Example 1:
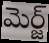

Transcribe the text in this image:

మెర్జ్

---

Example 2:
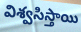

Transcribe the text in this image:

విశ్వసిస్తాయి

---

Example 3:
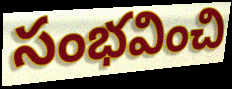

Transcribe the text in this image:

సంభవించి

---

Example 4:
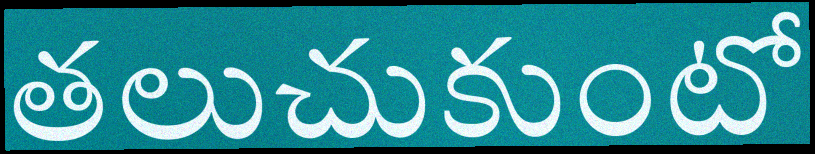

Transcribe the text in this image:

తలుచుకుంటో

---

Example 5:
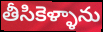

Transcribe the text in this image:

తీసికెళ్ళాను